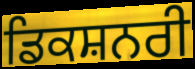
ਡਿਕਸ਼ਨਰੀ